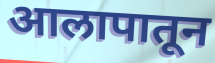
आलापातून